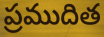
ప్రముదిత